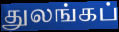
துலங்கப்